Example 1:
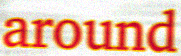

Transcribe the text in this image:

around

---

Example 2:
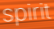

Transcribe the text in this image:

spirit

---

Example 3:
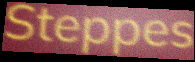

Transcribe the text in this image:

Steppes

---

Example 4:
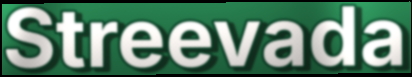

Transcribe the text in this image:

Streevada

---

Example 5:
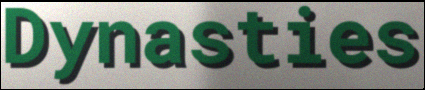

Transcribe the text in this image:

Dynasties